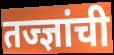
तज्ज्ञांची